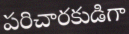
పరిచారకుడిగా